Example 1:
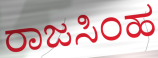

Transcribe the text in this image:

ರಾಜಸಿಂಹ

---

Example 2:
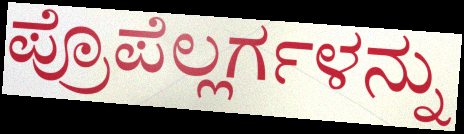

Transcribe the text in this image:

ಪ್ರೊಪೆಲ್ಲರ್ಗಳನ್ನು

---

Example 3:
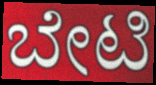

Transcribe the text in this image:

ಬೇಟಿ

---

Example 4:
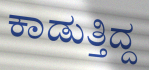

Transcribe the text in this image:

ಕಾಡುತ್ತಿದ್ದ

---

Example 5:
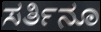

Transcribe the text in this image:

ಸರ್ತಿನೂ